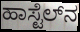
ಹಾಸ್ಟೆಲ್‌ನ